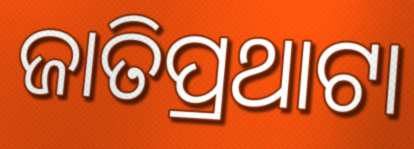
ଜାତିପ୍ରଥାଟା